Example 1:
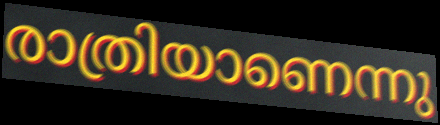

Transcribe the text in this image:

രാത്രിയാണെന്നു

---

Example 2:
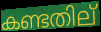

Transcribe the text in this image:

കണ്ടതില്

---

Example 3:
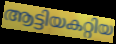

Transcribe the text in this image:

ആട്ടിയകറ്റിയ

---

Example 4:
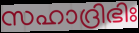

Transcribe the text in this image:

സഹാദ്രിഭിഃ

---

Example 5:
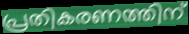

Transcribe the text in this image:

പ്രതികരണത്തിന്